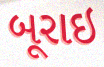
બૂરાઇ